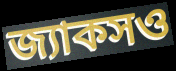
জ্যাকসও